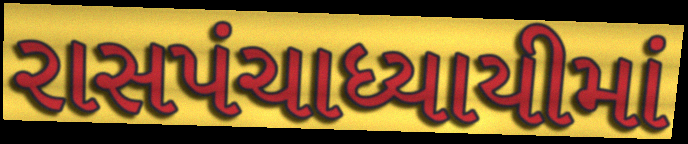
રાસપંચાધ્યાયીમાં